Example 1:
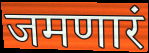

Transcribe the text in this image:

जमणारं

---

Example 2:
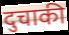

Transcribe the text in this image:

दुचाकी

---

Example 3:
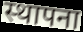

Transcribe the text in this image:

स्थापना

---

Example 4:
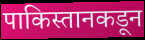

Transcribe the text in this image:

पाकिस्तानकडून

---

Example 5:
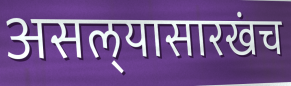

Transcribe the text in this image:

असल्यासारखंच